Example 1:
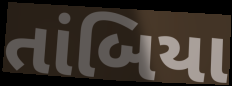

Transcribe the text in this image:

તાંબિયા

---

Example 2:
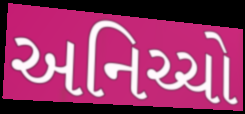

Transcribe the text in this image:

અનિચ્ચો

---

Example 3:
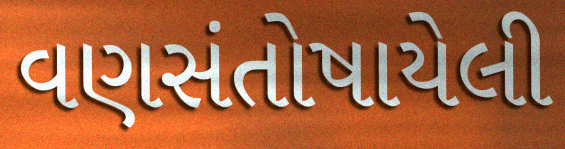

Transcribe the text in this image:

વણસંતોષાયેલી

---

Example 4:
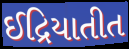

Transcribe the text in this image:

ઈદ્રિયાતીત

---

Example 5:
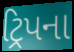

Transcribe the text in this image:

ટ્રિપના